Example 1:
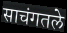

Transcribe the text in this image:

साचंगतले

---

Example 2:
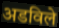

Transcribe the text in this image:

अडविले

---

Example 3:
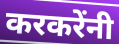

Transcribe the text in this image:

करकरेंनी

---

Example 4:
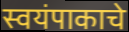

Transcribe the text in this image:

स्वयंपाकाचे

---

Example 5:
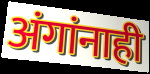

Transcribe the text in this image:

अंगांनाही